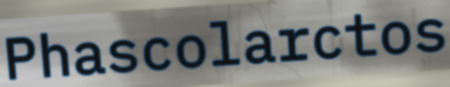
Phascolarctos